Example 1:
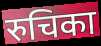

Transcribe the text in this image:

रुचिका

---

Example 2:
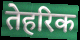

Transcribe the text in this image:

तेहरिक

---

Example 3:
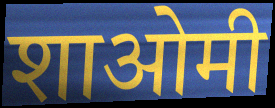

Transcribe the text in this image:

शाओमी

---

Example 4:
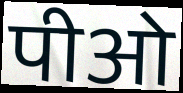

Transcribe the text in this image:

पीओ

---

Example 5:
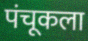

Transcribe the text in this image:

पंचूकला